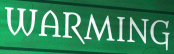
WARMING